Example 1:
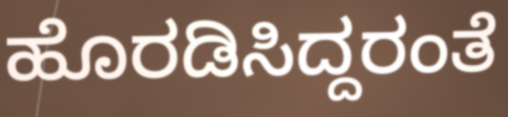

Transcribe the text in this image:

ಹೊರಡಿಸಿದ್ದರಂತೆ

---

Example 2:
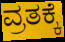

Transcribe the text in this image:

ವ್ರತಕ್ಕೆ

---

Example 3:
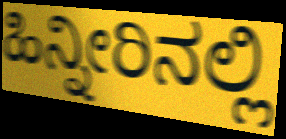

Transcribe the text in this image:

ಹಿನ್ನೀರಿನಲ್ಲಿ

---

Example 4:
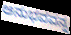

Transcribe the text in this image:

ಅನುಭವವನ್ನ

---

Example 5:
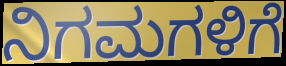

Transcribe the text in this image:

ನಿಗಮಗಳಿಗೆ